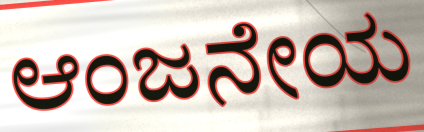
ಆಂಜನೇಯ